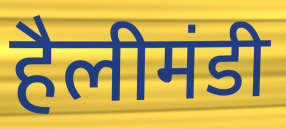
हैलीमंडी